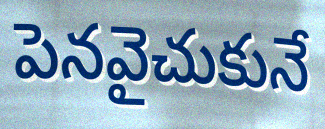
పెనవైచుకునే